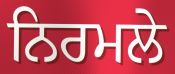
ਨਿਰਮਲੇ